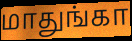
மாதுங்கா